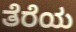
ತೆರೆಯ